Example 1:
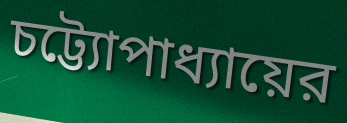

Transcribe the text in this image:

চট্ট্যোপাধ্যায়ের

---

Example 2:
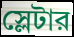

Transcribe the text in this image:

স্লেটার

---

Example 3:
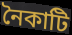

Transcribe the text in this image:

নৈকাটি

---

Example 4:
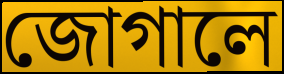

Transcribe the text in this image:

জোগালে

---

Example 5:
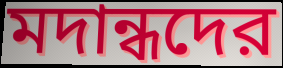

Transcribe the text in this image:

মদান্ধদের